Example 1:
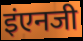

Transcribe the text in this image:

इंएनजी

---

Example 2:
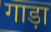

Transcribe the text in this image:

गाड़ा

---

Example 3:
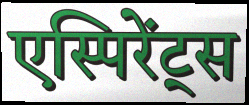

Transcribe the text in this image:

एस्पिरेंट्स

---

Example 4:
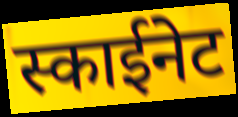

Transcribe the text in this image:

स्काईनेट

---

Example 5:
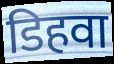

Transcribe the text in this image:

डिहवा